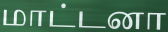
மாட்டனா